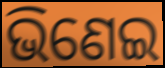
ଭିଣେଇ